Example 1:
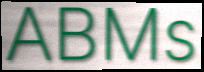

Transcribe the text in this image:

ABMs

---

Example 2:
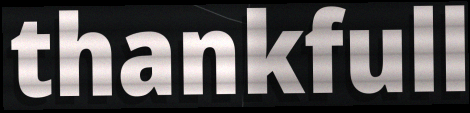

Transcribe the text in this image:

thankfull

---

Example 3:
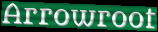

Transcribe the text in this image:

Arrowroot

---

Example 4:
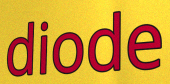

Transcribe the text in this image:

diode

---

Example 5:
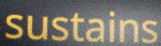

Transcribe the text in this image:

sustains